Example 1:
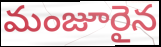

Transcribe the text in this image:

మంజూరైన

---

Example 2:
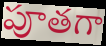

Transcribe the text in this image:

పూతగా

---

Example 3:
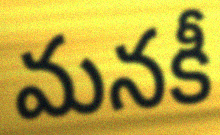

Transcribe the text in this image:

మనకీ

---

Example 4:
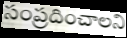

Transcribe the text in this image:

సంప్రదించాలని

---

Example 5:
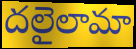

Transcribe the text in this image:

దలైలామా